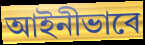
আইনীভাবে